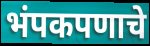
भंपकपणाचे